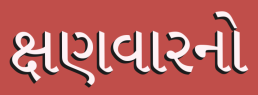
ક્ષણવારનો